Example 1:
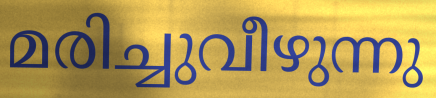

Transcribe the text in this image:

മരിച്ചുവീഴുന്നു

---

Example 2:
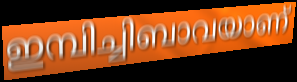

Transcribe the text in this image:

ഇമ്പിച്ചിബാവയാണ്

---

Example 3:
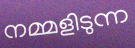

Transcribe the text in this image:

നമ്മളിടുന്ന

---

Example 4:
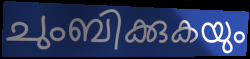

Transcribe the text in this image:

ചുംബിക്കുകയും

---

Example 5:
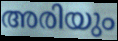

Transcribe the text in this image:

അരിയും